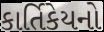
કાર્તિકેયનો